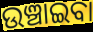
ଉଞ୍ଚାଇବା